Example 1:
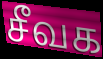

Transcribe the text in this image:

சீவக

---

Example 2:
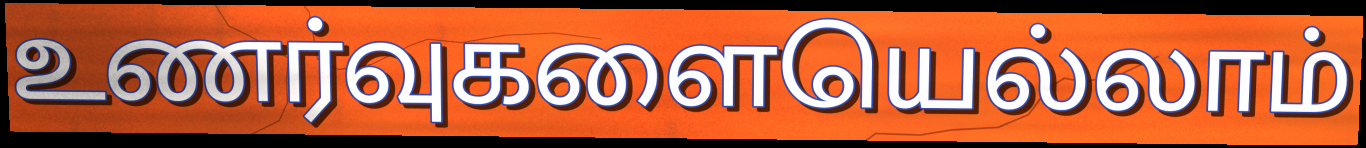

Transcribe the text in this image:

உணர்வுகளையெல்லாம்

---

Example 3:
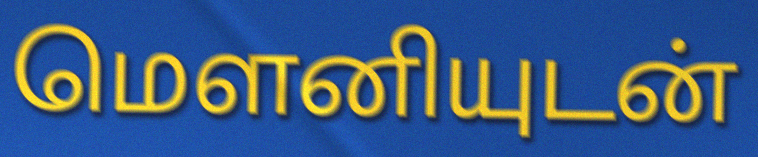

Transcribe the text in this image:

மௌனியுடன்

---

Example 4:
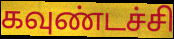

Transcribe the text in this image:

கவுண்டச்சி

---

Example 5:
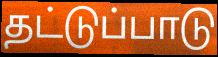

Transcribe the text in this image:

தட்டுப்பாடு